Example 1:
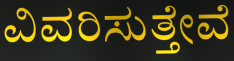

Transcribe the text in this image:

ವಿವರಿಸುತ್ತೇವೆ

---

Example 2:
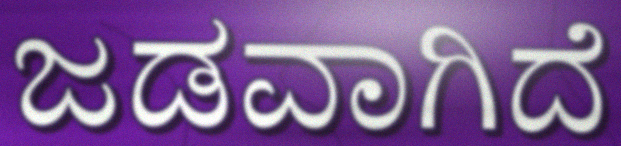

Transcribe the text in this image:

ಜಡವಾಗಿದೆ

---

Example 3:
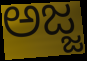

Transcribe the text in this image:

ಅಜ್ಜ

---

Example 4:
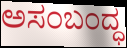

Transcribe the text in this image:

ಅಸಂಬಂದ್ಧ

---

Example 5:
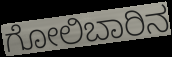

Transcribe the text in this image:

ಗೋಲಿಬಾರಿನ